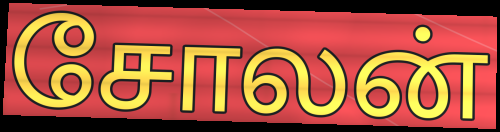
சோலன்